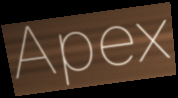
Apex